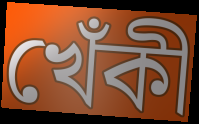
খেঁকী